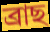
ব্ৰাছ